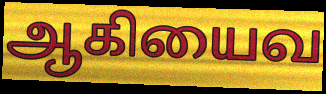
ஆகியைவ